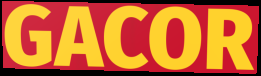
GACOR